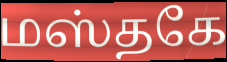
மஸ்தகே